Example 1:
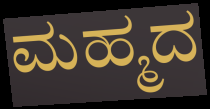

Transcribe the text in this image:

ಮಹ್ಮದ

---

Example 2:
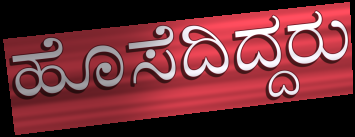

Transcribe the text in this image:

ಹೊಸೆದಿದ್ದರು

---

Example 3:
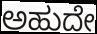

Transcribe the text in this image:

ಅಹುದೇ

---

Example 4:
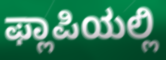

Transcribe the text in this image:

ಫ್ಲಾಪಿಯಲ್ಲಿ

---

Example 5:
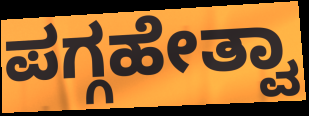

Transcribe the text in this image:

ಪಗ್ಗಹೇತ್ವಾ